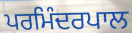
ਪਰਮਿੰਦਰਪਾਲ